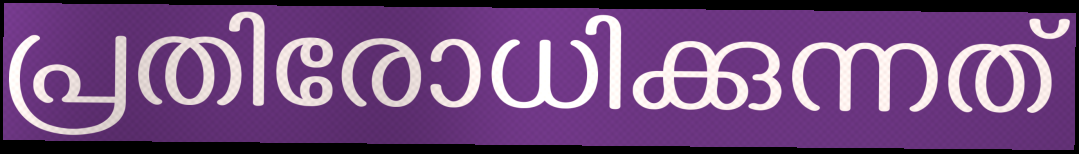
പ്രതിരോധിക്കുന്നത്